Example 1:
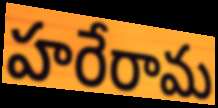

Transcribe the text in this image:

హరేరామ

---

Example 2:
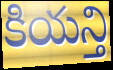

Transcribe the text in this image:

కియన్తి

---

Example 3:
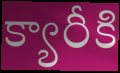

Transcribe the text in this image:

క్యారీకి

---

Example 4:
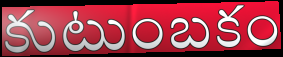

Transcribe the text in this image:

కుటుంబకం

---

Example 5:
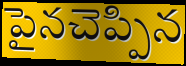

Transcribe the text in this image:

పైనచెప్పిన